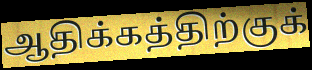
ஆதிக்கத்திற்குக்